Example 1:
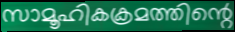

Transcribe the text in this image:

സാമൂഹികക്രമത്തിന്റെ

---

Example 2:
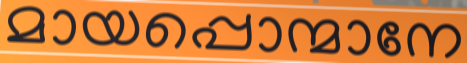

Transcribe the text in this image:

മായപ്പൊന്മാനേ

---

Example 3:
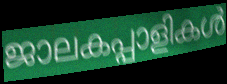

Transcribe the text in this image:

ജാലകപ്പാളികൾ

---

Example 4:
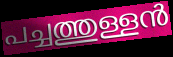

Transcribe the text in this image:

പച്ചത്തുള്ളൻ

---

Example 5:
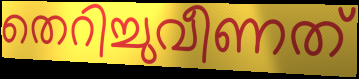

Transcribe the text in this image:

തെറിച്ചുവീണത്